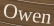
Owen